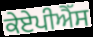
ਕੇਏਪੀਐੱਸ